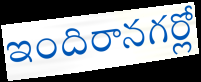
ఇందిరానగర్లో